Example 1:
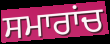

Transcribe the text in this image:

ਸਮਾਰਾਂਚ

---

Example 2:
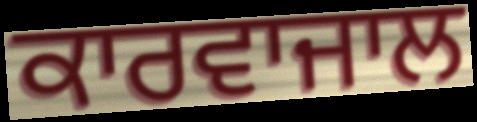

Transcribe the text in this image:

ਕਾਰਵਾਜਾਲ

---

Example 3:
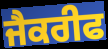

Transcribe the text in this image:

ਜੈਕਰੀਫ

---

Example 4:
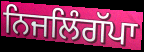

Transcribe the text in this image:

ਨਿਜਲਿੰਗੱਪਾ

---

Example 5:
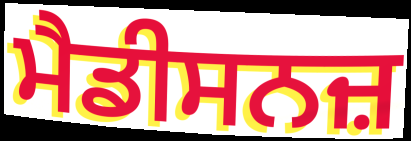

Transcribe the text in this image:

ਮੈਡੀਸਨਜ਼